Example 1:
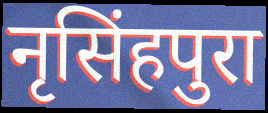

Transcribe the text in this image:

नृसिंहपुरा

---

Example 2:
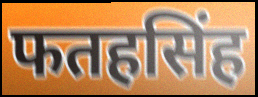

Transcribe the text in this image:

फतहसिंह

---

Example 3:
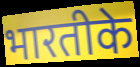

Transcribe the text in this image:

भारतीके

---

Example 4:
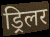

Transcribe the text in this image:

ड्रिलर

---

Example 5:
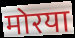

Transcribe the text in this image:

मोरया